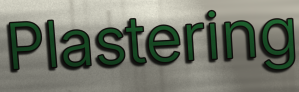
Plastering